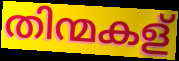
തിന്മകള്